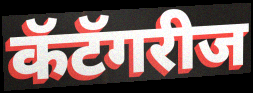
कॅटॅगरीज